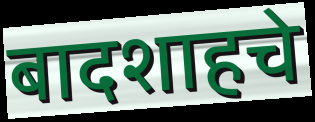
बादशाहचे